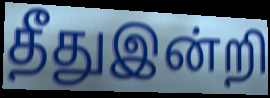
தீதுஇன்றி